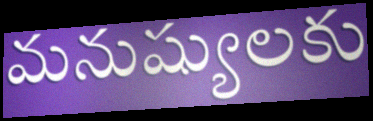
మనుష్యులకు